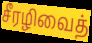
சீரழிவைத்